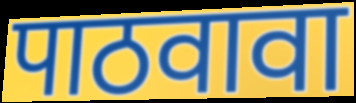
पाठवावा